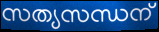
സത്യസന്ധന്